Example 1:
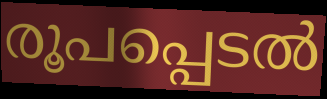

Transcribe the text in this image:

രൂപപ്പെടൽ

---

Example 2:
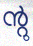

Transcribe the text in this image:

ന്റു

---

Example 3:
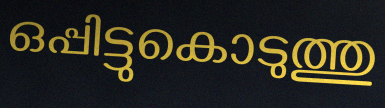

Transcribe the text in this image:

ഒപ്പിട്ടുകൊടുത്തു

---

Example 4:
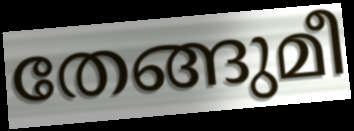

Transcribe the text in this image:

തേങ്ങുമീ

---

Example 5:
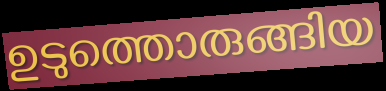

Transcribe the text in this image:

ഉടുത്തൊരുങ്ങിയ